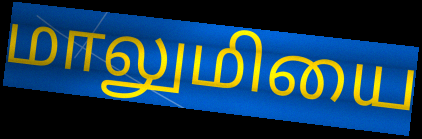
மாலுமியை